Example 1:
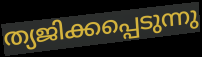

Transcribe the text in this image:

ത്യജിക്കപ്പെടുന്നു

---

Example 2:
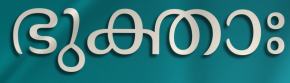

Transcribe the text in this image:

ഭുക്താഃ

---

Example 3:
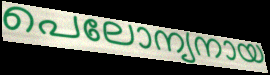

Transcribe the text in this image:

പെലോന്യനായ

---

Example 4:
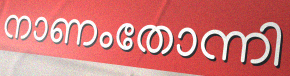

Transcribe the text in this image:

നാണംതോന്നി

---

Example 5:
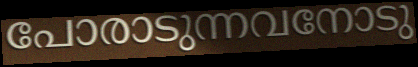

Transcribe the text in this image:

പോരാടുന്നവനോടു